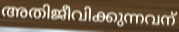
അതിജീവിക്കുന്നവന്